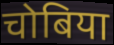
चोबिया